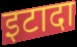
इटादा